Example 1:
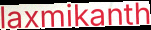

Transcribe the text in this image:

laxmikanth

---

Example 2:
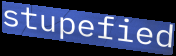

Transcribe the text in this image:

stupefied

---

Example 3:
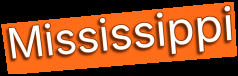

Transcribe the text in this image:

Mississippi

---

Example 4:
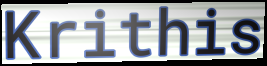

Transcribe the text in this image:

Krithis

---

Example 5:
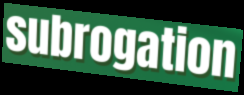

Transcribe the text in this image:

subrogation